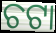
ଚଟା